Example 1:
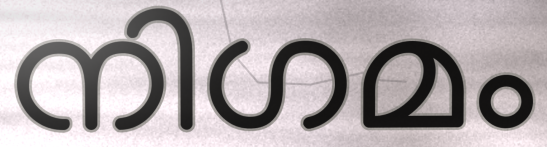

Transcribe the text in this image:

നിഗമം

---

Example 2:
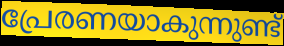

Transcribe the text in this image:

പ്രേരണയാകുന്നുണ്ട്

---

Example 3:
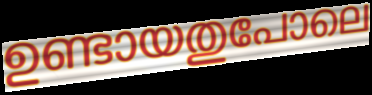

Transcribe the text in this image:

ഉണ്ടായതുപോലെ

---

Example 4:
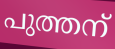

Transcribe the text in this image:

പുത്തന്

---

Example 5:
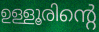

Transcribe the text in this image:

ഉള്ളൂരിന്റെ